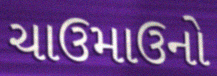
ચાઉમાઉનો